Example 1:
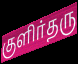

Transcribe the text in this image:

குளிர்தரு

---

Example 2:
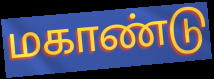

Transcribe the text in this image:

மகாண்டு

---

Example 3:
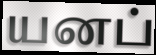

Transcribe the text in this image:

யனப்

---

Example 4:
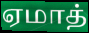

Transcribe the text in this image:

ஏமாத்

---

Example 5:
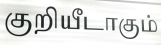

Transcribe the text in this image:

குறியீடாகும்